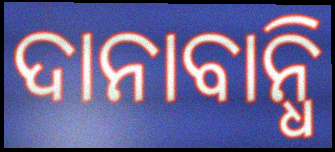
ଦାନାବାନ୍ଧି